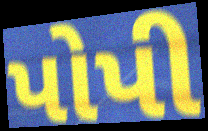
પોપી